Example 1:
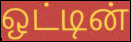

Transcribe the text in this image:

ஒட்டின்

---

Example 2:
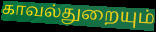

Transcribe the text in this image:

காவல்துறையும்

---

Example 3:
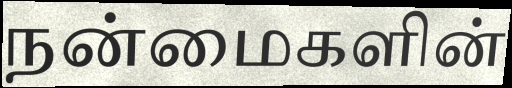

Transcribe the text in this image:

நன்மைகளின்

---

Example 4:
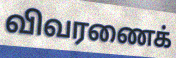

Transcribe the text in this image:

விவரணைக்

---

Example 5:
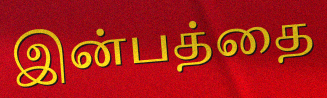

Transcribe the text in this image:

இன்பத்தை